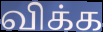
விக்க